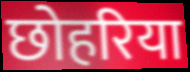
छोहरिया